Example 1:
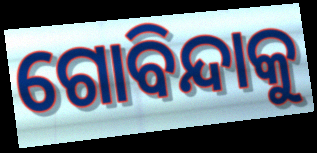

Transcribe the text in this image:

ଗୋବିନ୍ଦାକୁ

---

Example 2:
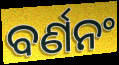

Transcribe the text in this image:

ବର୍ଣନଂ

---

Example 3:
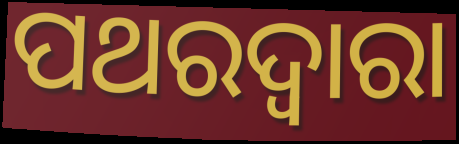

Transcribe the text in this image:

ପଥରଦ୍ୱାରା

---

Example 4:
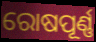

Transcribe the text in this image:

ରୋଷପୂର୍ଣ୍ଣ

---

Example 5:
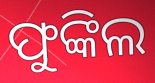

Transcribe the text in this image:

ଫୁଙ୍କିଲ